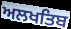
ਅਲਖਤਿਬ